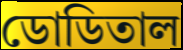
ডোডিতাল